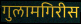
गुलामगिरीस